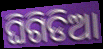
ଘିଗିଡିଆ